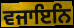
ਵਜਾਇਨਿ